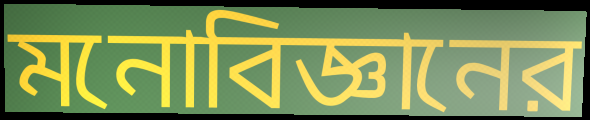
মনোবিজ্ঞানের